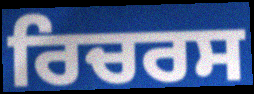
ਰਿਚਰਸ